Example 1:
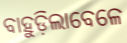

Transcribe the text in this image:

ବାହୁଡ଼ିଲାବେଳେ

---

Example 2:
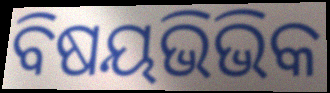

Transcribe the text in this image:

ବିଷୟଭିଭିକ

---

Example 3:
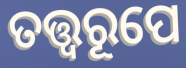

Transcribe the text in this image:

ତତ୍ତ୍ୱରୂପେ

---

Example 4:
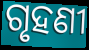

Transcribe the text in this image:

ଗୃହଣୀ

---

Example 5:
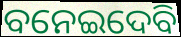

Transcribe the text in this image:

ବନେଇଦେବି